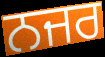
ਨਜਰ